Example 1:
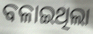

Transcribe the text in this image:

ବଳାଇଥିଲା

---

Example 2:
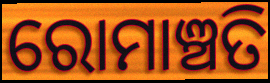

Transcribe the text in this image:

ରୋମାଞ୍ଚତି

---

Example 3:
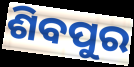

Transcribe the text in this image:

ଶିବପୁର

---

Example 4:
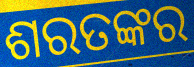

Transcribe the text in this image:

ଶରତଙ୍କର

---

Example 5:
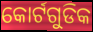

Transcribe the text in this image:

କୋର୍ଟଗୁଡିକ